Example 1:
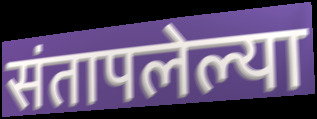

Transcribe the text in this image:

संतापलेल्या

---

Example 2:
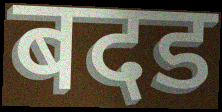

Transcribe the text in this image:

बदड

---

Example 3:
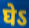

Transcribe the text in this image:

घेऽ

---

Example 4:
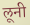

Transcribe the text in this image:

लूनी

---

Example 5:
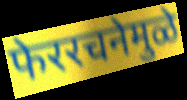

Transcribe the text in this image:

फेररचनेमुळे